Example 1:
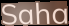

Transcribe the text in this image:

Saha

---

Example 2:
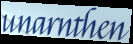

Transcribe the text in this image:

unarnthen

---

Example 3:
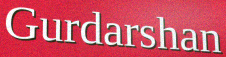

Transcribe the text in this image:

Gurdarshan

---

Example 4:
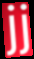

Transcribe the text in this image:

jj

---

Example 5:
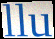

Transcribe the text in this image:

llu